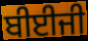
ਬੀਈਜੀ